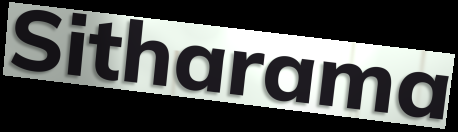
Sitharama